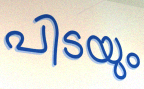
പിടയും